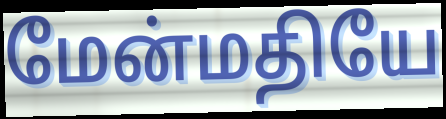
மேன்மதியே